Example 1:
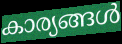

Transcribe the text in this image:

കാര്യങ്ങൾ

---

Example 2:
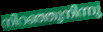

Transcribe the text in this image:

നിറഞ്ഞുനിന്നു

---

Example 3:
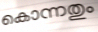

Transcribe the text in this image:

കൊന്നതും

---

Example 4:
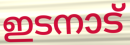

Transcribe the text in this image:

ഇടനാട്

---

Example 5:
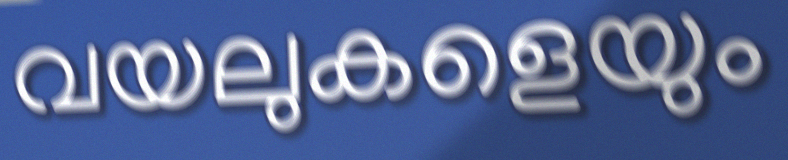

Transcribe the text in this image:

വയലുകളെയും